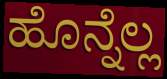
ಹೊನ್ನೆಲ್ಲ